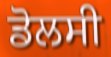
ਡੋਲਸੀ